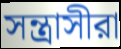
সন্ত্রাসীরা